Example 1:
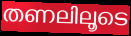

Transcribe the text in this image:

തണലിലൂടെ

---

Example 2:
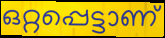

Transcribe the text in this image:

ഒറ്റപ്പെട്ടാണ്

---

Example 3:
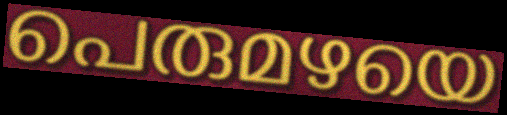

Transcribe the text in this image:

പെരുമഴയെ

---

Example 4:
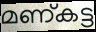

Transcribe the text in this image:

മണ്കട്ട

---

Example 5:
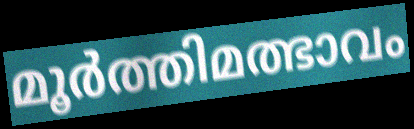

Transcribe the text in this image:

മൂർത്തിമത്ഭാവം